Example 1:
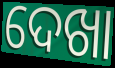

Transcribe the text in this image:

ଦେଖା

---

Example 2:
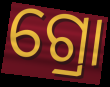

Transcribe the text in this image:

ଗ୍ରୋ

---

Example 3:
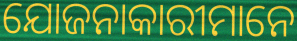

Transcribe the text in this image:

ଯୋଜନାକାରୀମାନେ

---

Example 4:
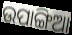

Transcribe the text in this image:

ଉପାଙ୍ଗିଆ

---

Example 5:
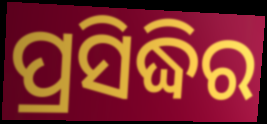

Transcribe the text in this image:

ପ୍ରସିଦ୍ଧିର